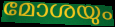
മോശയും